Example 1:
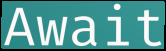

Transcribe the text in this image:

Await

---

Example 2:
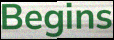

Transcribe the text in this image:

Begins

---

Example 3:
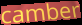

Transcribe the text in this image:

camber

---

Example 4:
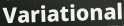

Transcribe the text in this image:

Variational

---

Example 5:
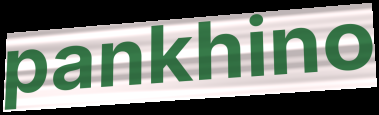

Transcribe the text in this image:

pankhino